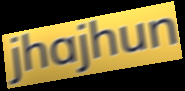
jhajhun